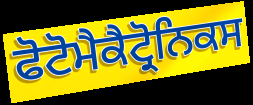
ਫੋਟੋਮੈਕੈਟ੍ਰੋਨਿਕਸ